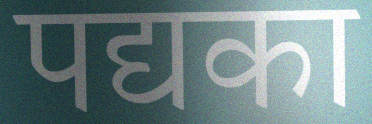
पद्यका